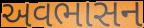
અવભાસન